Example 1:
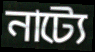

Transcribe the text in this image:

নাট্যে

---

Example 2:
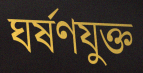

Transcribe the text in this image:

ঘর্ষণযুক্ত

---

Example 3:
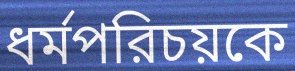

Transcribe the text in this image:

ধর্মপরিচয়কে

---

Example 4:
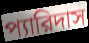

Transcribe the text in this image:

প্যারিদাস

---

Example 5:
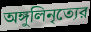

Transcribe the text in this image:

অঙ্গুলিনৃত্যের